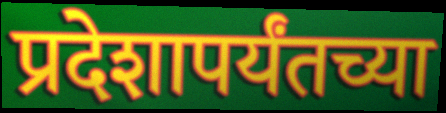
प्रदेशापर्यंतच्या